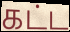
கட்ட